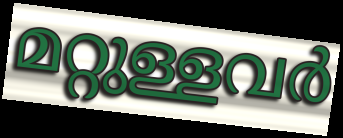
മറ്റുള്ളവർ